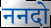
ननदो